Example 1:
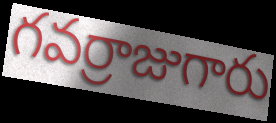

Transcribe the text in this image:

గవర్రాజుగారు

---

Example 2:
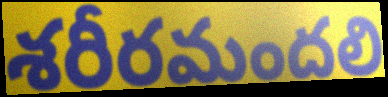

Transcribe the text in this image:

శరీరమందలి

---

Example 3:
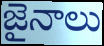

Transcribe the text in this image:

జైనాలు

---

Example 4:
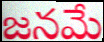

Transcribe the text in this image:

జనమే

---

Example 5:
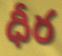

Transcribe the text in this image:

ధీర